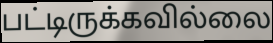
பட்டிருக்கவில்லை